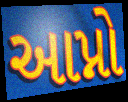
આપ્નો